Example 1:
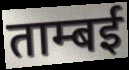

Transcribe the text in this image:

ताम्बई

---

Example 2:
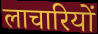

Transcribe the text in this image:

लाचारियों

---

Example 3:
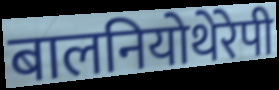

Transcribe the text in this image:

बालनियोथेरेपी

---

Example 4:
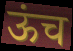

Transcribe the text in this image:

ऊंच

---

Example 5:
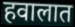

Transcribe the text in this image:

हवालात